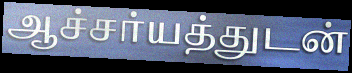
ஆச்சர்யத்துடன்